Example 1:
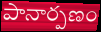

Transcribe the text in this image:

పానార్పణం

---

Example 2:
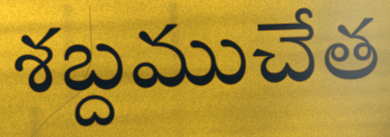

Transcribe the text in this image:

శబ్దముచేత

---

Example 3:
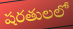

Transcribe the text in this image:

షరతులలో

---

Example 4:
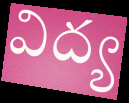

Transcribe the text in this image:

విద్య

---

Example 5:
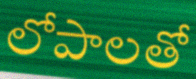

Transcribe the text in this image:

లోపాలతో